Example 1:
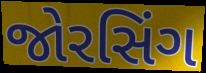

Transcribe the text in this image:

જોરસિંગ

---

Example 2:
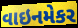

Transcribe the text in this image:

વાઇનમેકર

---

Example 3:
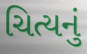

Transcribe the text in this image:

ચિત્યનું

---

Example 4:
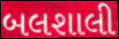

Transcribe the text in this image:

બલશાલી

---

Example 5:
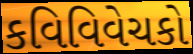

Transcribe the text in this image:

કવિવિવેચકો